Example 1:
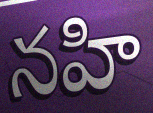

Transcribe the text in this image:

నహి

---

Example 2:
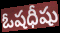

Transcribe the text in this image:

ఓషధీషు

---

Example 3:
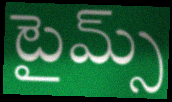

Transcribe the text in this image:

టైమ్స్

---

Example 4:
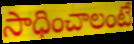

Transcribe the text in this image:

సాధించాలంటే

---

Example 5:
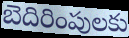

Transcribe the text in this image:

బెదిరింపులకు